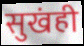
सुखंही